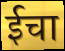
ईचा